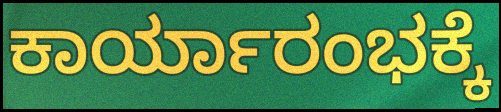
ಕಾರ್ಯಾರಂಭಕ್ಕೆ